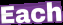
Each